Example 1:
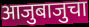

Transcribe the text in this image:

आजुबाजुचा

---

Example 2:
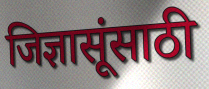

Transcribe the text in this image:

जिज्ञासूंसाठी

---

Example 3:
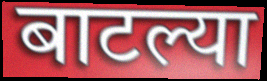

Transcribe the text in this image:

बाटल्या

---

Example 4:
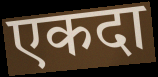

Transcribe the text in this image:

एकदा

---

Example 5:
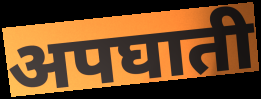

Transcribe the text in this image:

अपघाती